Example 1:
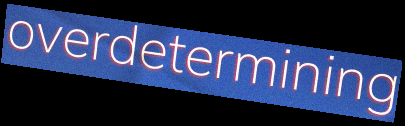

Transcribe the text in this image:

overdetermining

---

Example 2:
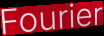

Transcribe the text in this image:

Fourier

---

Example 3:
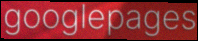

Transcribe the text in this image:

googlepages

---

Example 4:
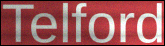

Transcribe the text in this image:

Telford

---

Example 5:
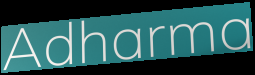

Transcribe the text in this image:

Adharma